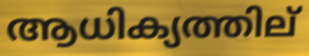
ആധിക്യത്തില്